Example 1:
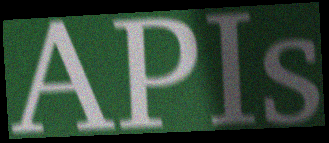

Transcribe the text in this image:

APIs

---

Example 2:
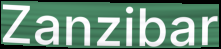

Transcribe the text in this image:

Zanzibar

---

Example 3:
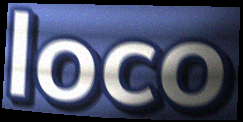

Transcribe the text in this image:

loco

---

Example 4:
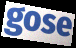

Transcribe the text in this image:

gose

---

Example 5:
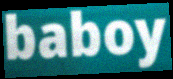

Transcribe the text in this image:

baboy